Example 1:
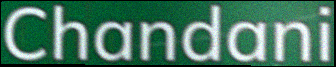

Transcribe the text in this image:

Chandani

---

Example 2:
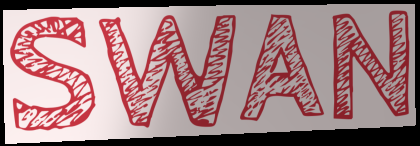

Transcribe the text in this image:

SWAN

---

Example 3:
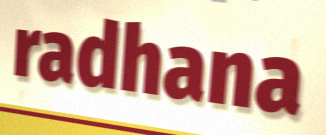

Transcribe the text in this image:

radhana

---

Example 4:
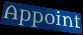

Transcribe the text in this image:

Appoint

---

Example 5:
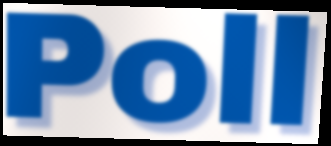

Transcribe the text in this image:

Poll